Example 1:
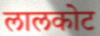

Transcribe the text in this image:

लालकोट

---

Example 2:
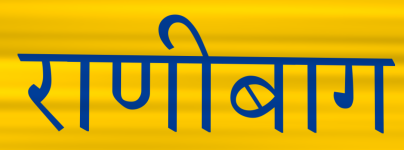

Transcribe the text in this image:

राणीबाग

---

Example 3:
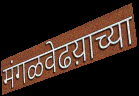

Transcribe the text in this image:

मंगळवेढय़ाच्या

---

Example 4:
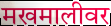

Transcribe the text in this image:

मखमालीवर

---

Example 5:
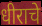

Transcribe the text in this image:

धीराचे